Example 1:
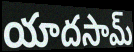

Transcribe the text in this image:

యాదసామ్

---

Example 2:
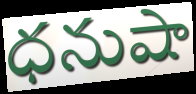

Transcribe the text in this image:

ధనుషా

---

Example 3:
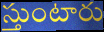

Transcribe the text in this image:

స్తుంటారు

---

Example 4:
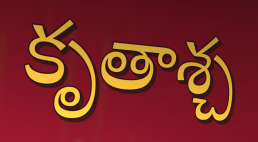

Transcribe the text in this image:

కృతాశ్చ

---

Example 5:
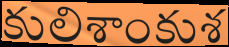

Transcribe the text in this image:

కులిశాంకుశ